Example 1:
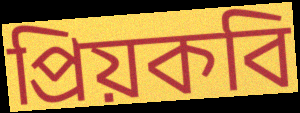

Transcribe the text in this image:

প্রিয়কবি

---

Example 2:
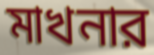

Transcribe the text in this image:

মাখনার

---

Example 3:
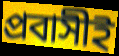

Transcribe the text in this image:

প্রবাসীই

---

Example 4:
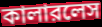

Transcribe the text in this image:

কালারলেস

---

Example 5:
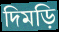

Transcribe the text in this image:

দিমড়ি